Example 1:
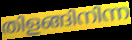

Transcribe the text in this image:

തിളങ്ങിനിന്ന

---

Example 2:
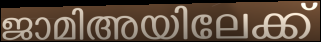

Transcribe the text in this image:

ജാമിഅയിലേക്ക്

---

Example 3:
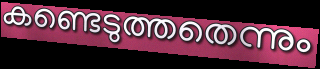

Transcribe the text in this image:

കണ്ടെടുത്തതെന്നും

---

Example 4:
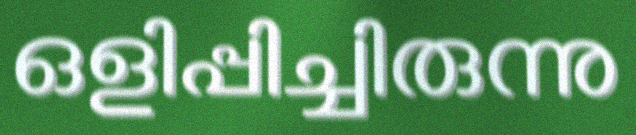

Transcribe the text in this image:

ഒളിപ്പിച്ചിരുന്നു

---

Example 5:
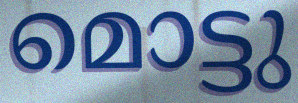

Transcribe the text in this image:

മൊട്ടു